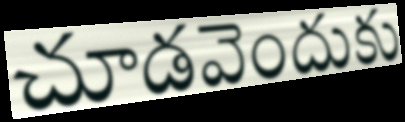
చూడవెందుకు